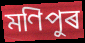
মণিপুৰ